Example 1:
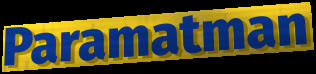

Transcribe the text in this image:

Paramatman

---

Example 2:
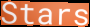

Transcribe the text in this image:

Stars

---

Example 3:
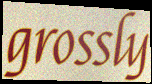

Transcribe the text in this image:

grossly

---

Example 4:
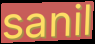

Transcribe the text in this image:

sanil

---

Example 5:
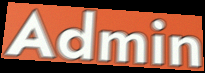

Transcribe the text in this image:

Admin